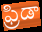
ఫ్రిడా